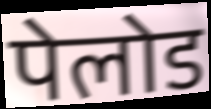
पेलोड